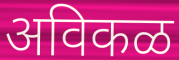
अविकळ